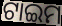
ଟାଇମ